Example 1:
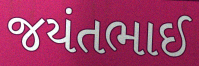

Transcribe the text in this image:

જયંતભાઈ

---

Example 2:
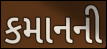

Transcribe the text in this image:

કમાનની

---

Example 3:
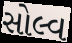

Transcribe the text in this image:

સોલ્વ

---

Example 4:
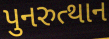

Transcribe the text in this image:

પુનરુત્થાન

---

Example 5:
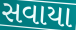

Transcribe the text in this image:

સવાયા